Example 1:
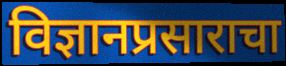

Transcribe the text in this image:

विज्ञानप्रसाराचा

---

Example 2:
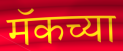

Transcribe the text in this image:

मॅकच्या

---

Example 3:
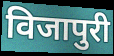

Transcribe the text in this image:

विजापुरी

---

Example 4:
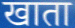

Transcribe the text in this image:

खाता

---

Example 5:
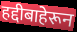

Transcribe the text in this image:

हद्दीबाहेरून